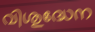
വിശുദ്ധേന